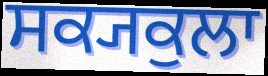
ਸਕ੍ਯਕੁਲਾ